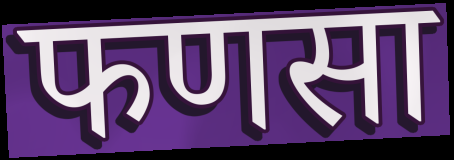
फणसा